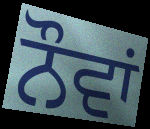
ਨੌਵਾਂ